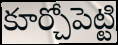
కూర్చోపెట్టి